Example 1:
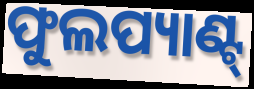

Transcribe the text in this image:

ଫୁଲପ୍ୟାଣ୍ଟ୍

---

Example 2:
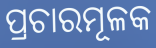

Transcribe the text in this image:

ପ୍ରଚାରମୂଳକ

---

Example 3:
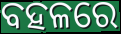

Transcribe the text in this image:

ବହଳରେ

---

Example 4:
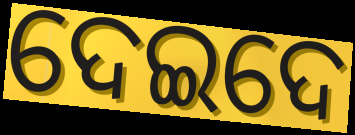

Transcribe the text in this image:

ଦେଇଦେ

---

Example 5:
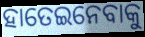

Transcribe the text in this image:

ହାତେଇନେବାକୁ